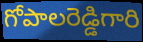
గోపాలరెడ్డిగారి